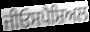
ਜੀਓਸਪੈਸ਼ਿਅਲ